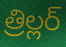
త్రిల్లర్